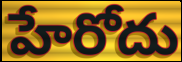
హేరోదు